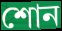
শোন